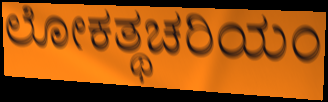
ಲೋಕತ್ಥಚರಿಯಂ